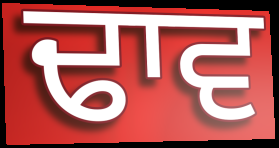
ਢਾਵ